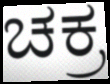
ಚಕ್ರ